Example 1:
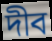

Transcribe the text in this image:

দীব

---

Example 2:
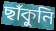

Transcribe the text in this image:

ছাঁকুনি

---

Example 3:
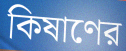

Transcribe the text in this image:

কিষাণের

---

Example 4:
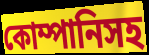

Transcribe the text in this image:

কোম্পানিসহ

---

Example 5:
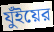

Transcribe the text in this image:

যুঁইয়ের